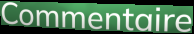
Commentaire